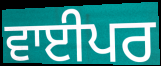
ਵਾਈਪਰ